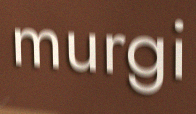
murgi